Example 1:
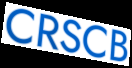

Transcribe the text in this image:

CRSCB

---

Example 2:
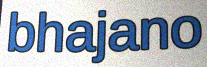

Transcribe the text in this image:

bhajano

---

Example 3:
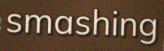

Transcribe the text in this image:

smashing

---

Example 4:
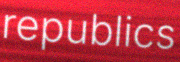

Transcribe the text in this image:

republics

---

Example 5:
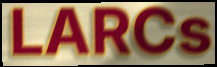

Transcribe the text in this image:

LARCs